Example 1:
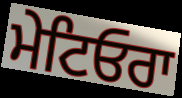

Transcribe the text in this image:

ਮੇਟਿਓਰਾ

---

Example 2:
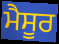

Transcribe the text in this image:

ਮੈਸੂਰ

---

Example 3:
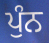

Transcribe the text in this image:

ਪੁੰਨ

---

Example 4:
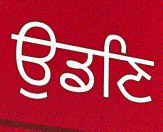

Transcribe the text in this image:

ਉਡਣਿ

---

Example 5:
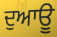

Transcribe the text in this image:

ਦੁਆਊ